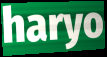
haryo